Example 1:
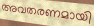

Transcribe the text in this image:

അവതരണമായി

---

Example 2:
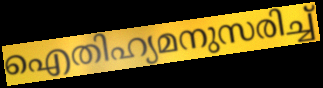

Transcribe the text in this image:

ഐതിഹ്യമനുസരിച്ച്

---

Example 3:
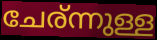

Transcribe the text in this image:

ചേര്ന്നുള്ള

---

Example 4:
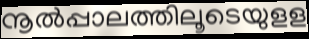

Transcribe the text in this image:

നൂൽപ്പാലത്തിലൂടെയുളള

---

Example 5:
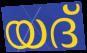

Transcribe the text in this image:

യദ്